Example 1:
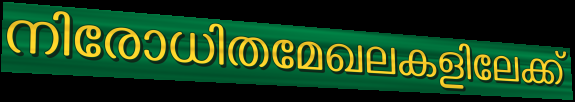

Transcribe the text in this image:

നിരോധിതമേഖലകളിലേക്ക്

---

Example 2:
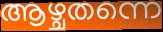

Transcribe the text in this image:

ആഴ്ചതന്നെ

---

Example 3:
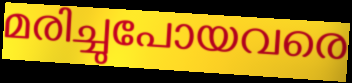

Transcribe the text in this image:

മരിച്ചുപോയവരെ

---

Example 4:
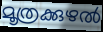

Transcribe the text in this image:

മൂത്രക്കുഴൽ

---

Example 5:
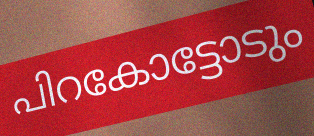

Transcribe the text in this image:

പിറകോട്ടോടും